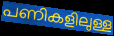
പണികളിലുള്ള